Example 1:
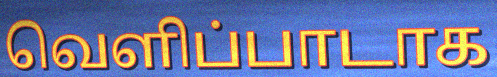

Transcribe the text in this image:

வெளிப்பாடாக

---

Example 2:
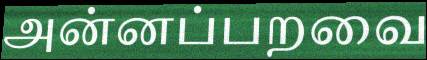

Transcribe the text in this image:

அன்னப்பறவை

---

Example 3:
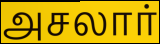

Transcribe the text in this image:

அசலார்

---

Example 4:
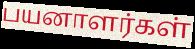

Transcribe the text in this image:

பயனாளர்கள்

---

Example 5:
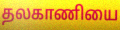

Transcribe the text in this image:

தலகாணியை